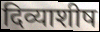
दिव्याशीष